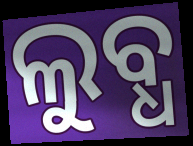
ଲୁବ୍ଧ